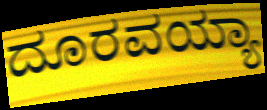
ದೂರವಯ್ಯಾ